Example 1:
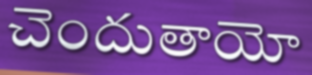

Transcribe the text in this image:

చెందుతాయో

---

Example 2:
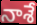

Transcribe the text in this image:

నాశే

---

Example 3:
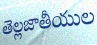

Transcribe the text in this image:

తెల్లజాతీయుల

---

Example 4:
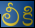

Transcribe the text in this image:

లీకి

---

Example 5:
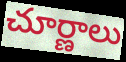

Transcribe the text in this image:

చూర్ణాలు